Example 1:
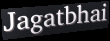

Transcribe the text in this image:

Jagatbhai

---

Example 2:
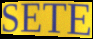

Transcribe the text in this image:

SETE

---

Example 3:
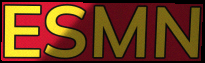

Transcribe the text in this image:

ESMN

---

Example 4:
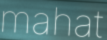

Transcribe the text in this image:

mahat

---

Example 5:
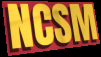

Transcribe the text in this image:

NCSM